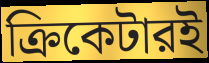
ক্রিকেটারই